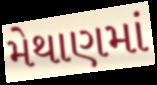
મેથાણમાં